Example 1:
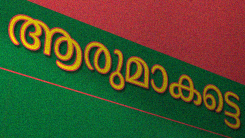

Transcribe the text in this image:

ആരുമാകട്ടെ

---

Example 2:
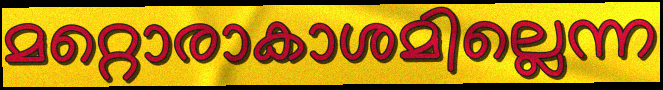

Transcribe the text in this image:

മറ്റൊരാകാശമില്ലെന്ന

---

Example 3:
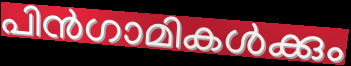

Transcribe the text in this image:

പിൻഗാമികൾക്കും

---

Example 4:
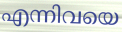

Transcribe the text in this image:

എന്നിവയെ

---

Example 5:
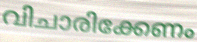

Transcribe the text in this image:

വിചാരിക്കേണം